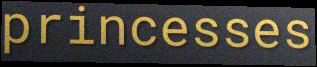
princesses